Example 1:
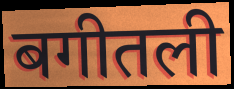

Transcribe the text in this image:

बगीतली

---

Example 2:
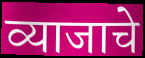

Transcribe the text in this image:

व्याजाचे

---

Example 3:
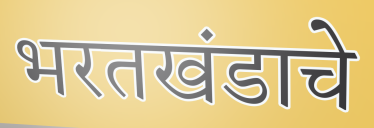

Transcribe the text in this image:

भरतखंडाचे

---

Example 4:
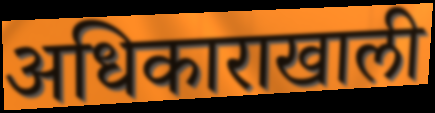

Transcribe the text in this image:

अधिकाराखाली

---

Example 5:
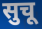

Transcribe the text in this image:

सुचू